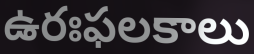
ఉరఃఫలకాలు